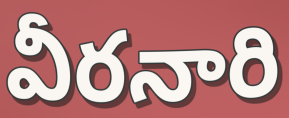
వీరనారి